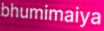
bhumimaiya